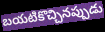
బయటికొచ్చినప్పుడు